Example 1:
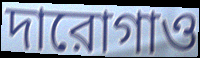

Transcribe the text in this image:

দারোগাও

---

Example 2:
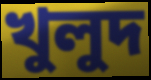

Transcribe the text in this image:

খুলুদ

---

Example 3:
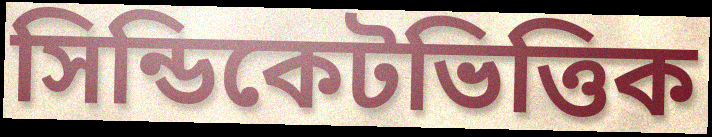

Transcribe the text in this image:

সিন্ডিকেটভিত্তিক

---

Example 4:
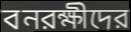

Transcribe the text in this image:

বনরক্ষীদের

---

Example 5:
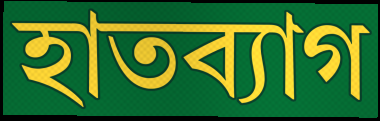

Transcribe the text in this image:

হাতব্যাগ